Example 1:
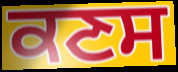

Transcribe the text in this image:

ਕਣਸ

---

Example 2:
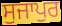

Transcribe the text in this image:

ਸੁਜਾਪੁਰ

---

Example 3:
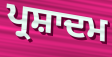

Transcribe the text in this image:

ਪ੍ਰਸ਼ਾਦਮ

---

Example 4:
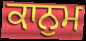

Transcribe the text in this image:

ਕਾਨੁਮ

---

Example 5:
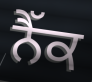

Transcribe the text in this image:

ਨੈੱਕ